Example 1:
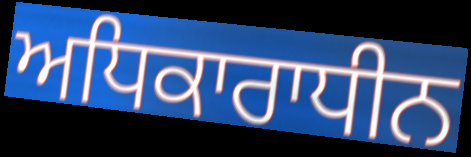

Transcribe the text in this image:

ਅਧਿਕਾਰਾਧੀਨ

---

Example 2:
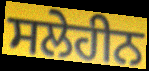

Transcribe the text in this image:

ਸਲੇਹੀਨ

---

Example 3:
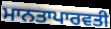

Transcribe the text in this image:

ਮਾਨਤਾਪਾਰਵਤੀ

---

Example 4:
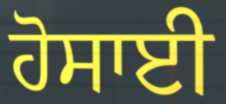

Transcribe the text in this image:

ਹੋਸਾਈ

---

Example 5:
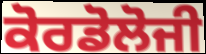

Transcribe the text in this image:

ਕੋਰਡੋਲੋਜੀ